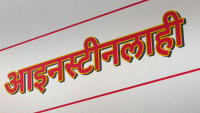
आइनस्टीनलाही